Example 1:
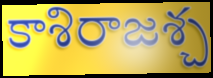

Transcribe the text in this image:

కాశిరాజశ్చ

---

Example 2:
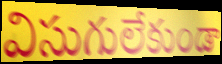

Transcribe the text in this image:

విసుగులేకుండా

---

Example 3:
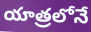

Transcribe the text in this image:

యాత్రలోనే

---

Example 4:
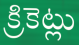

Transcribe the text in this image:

క్రికెట్లు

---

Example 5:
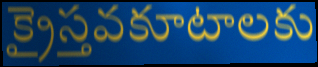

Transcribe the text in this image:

క్రైస్తవకూటాలకు